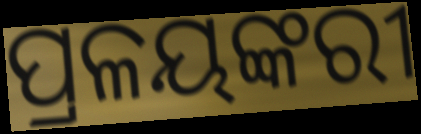
ପ୍ରଳୟଙ୍କରୀ